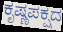
ಕೃಷ್ಣಪಕ್ಷದ